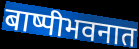
बाष्पीभवनात